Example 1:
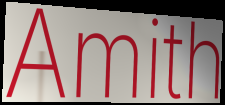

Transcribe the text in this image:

Amith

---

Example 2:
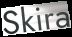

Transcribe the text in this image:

Skira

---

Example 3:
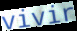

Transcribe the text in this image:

vivir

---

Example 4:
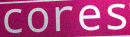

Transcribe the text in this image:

cores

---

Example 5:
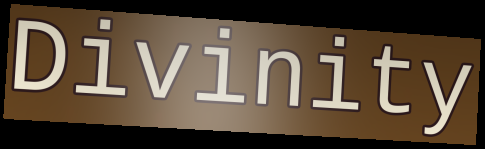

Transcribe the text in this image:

Divinity